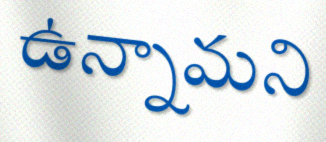
ఉన్నామని